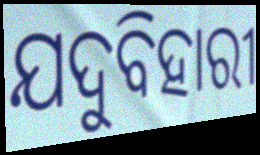
ଯଦୁବିହାରୀ